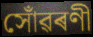
সোঁৱৰণী